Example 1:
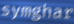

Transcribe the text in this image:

symghar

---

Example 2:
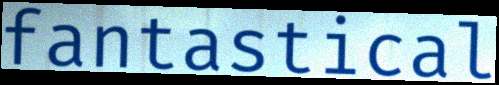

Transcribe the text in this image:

fantastical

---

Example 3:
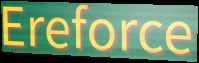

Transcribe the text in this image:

Ereforce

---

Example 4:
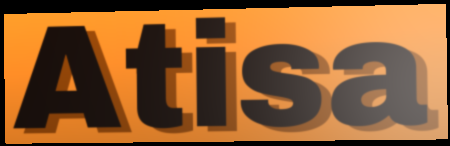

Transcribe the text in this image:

Atisa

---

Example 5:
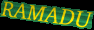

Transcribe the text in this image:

RAMADU